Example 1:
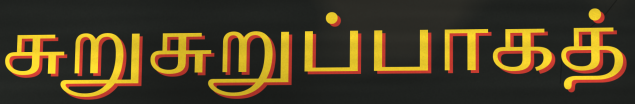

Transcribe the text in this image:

சுறுசுறுப்பாகத்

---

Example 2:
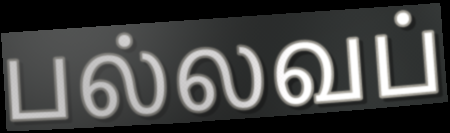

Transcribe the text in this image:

பல்லவப்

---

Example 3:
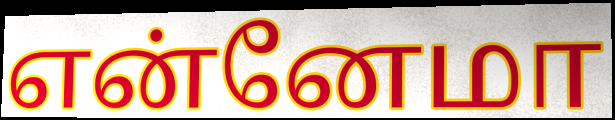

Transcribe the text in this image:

என்னேமா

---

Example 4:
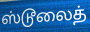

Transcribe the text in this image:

ஸ்டூலைத்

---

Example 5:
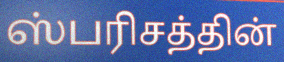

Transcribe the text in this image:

ஸ்பரிசத்தின்